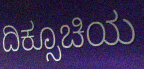
ದಿಕ್ಸೂಚಿಯ